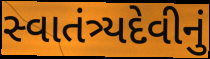
સ્વાતંત્ર્યદેવીનું